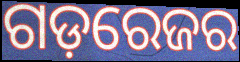
ଗଡ଼ରେଜର